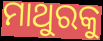
ମାଥୁରକୁ